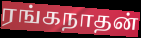
ரங்கநாதன்